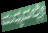
ಮಧ್ಯದಲ್ಲೇ